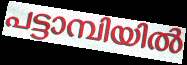
പട്ടാമ്പിയിൽ